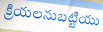
క్రియలనుబట్టియు